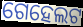
ଗେହେଲଟ